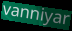
vanniyar